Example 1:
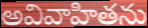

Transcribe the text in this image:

అవివాహితను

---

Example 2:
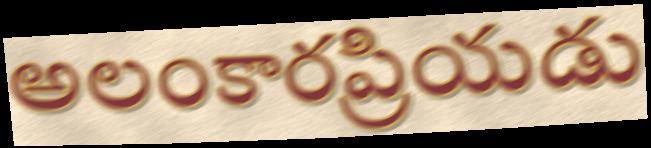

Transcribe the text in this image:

అలంకారప్రియడు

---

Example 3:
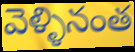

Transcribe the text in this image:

వెళ్ళినంత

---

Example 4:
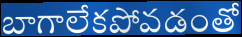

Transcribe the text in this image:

బాగాలేకపోవడంతో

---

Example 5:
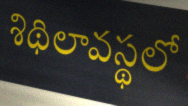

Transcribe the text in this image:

శిథిలావస్థలో